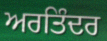
ਅਰਤਿੰਦਰ